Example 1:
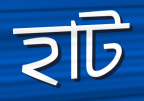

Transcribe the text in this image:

হাট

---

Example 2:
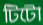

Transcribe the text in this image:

টিটো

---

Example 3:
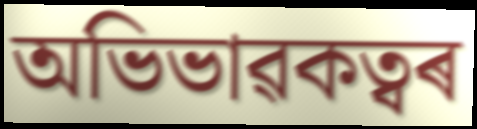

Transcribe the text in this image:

অভিভাৱকত্বৰ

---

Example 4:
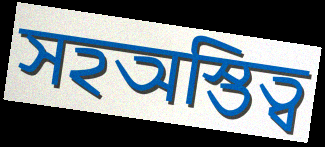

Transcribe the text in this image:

সহঅস্তিত্ব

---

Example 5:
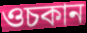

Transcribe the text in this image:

ওচকান